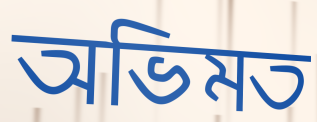
অভিমত